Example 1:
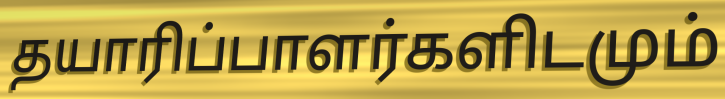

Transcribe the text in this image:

தயாரிப்பாளர்களிடமும்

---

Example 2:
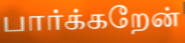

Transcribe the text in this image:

பார்க்கறேன்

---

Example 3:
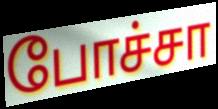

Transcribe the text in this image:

போச்சா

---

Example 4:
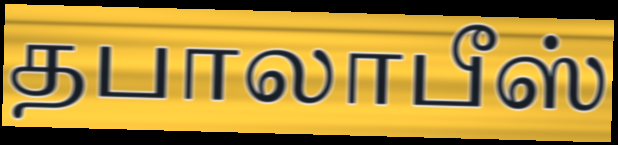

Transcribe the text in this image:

தபாலாபீஸ்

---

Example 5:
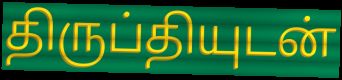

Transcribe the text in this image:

திருப்தியுடன்